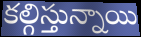
కల్గిస్తున్నాయి